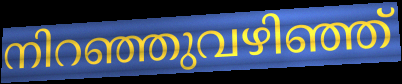
നിറഞ്ഞുവഴിഞ്ഞ്